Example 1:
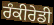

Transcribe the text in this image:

ਰੰਕੀਰੇਡੀ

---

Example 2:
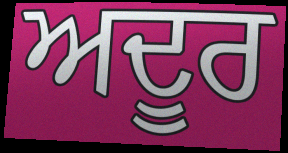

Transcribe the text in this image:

ਅਦੂਰ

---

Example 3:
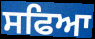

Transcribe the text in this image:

ਸਫਿਆ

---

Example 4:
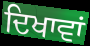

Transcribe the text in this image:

ਦਿਖਾਵਾਂ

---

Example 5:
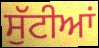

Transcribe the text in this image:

ਸੁੱਟੀਆਂ